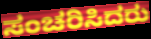
ಸಂಚರಿಸಿದರು